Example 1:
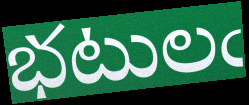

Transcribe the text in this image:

భటులఁ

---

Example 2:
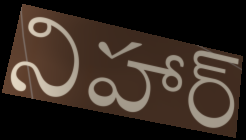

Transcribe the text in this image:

నిహార్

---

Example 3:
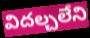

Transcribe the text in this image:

విదల్చలేని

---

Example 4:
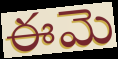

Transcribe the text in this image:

ఈమె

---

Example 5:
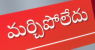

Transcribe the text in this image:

మర్చిపోలేదు